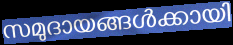
സമുദായങ്ങൾക്കായി